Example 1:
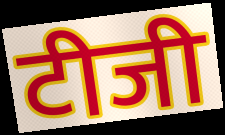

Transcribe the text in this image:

टीजी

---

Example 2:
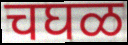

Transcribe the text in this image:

चघळ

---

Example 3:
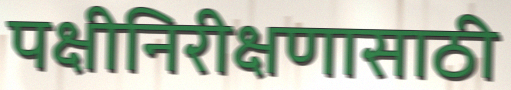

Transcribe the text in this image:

पक्षीनिरीक्षणासाठी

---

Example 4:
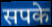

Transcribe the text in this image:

सपके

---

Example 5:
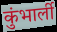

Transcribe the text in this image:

कुंभार्ली